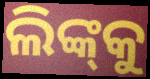
ଲିଙ୍କ୍‌କୁ